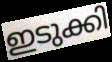
ഇടുക്കി